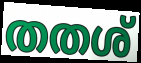
തതശ്